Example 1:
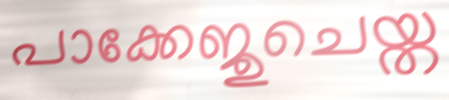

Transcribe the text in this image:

പാക്കേജുചെയ്ത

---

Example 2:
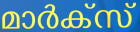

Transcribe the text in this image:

മാർക്‌സ്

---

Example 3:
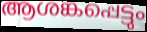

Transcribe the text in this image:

ആശങ്കപ്പെട്ടും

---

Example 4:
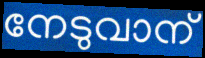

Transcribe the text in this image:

നേടുവാന്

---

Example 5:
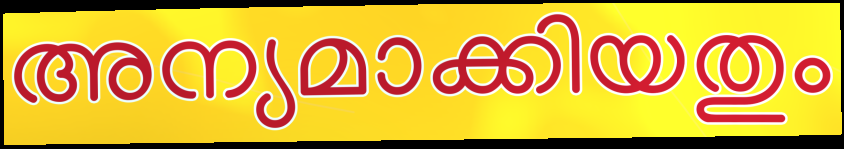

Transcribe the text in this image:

അന്യമാക്കിയതും